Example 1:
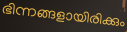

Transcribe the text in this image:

ഭിന്നങ്ങളായിരിക്കും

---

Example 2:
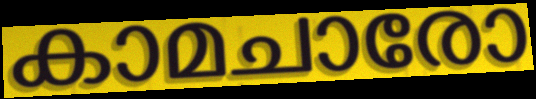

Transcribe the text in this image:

കാമചാരോ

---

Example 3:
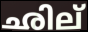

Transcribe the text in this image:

ഛില്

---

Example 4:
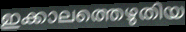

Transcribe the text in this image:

ഇക്കാലത്തെഴുതിയ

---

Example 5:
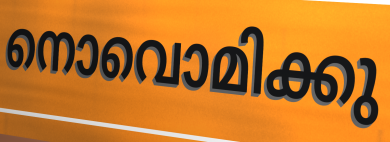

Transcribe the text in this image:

നൊവൊമിക്കു